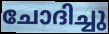
ചോദിച്ചു